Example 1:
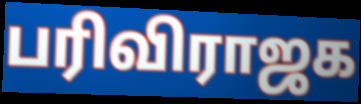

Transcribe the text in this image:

பரிவிராஜக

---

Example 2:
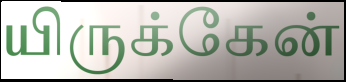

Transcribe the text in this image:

யிருக்கேன்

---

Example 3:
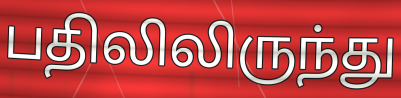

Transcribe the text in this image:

பதிலிலிருந்து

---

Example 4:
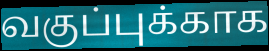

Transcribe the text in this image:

வகுப்புக்காக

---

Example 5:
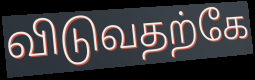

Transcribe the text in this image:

விடுவதற்கே